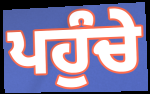
ਪਹੁੰਚੇ